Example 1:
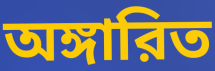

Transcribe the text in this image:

অঙ্গারিত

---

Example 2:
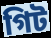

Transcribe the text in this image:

গিট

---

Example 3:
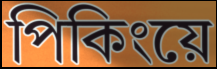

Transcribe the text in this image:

পিকিংয়ে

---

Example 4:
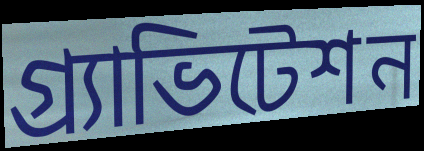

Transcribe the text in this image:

গ্র্যাভিটেশন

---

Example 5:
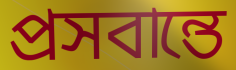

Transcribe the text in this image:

প্রসবান্তে